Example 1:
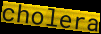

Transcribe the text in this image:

cholera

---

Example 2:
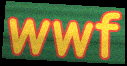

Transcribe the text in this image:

wwf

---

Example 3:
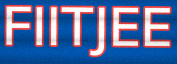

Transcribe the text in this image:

FIITJEE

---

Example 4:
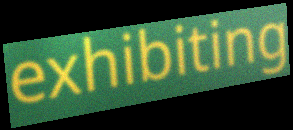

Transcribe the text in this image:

exhibiting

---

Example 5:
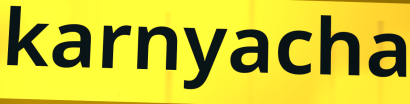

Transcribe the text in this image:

karnyacha